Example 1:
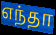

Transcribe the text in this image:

எந்தா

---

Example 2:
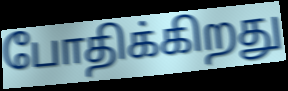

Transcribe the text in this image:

போதிக்கிறது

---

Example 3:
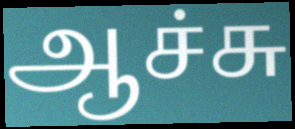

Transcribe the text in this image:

ஆச்சு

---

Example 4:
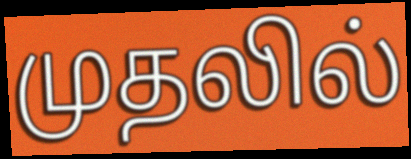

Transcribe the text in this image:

முதலில்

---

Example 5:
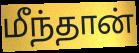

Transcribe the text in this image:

மீந்தான்